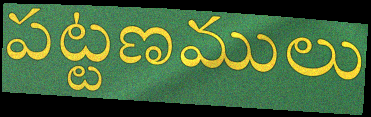
పట్టణములు